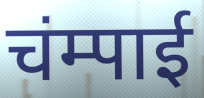
चंम्पाई